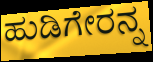
ಹುಡಿಗೇರನ್ನ